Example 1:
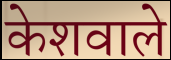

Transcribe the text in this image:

केशवाले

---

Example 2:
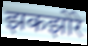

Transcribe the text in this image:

झकझोरे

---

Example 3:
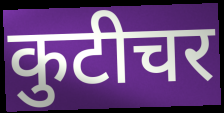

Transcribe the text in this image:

कुटीचर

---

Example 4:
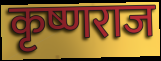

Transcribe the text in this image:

कृष्णराज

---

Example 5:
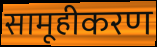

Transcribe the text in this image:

सामूहीकरण